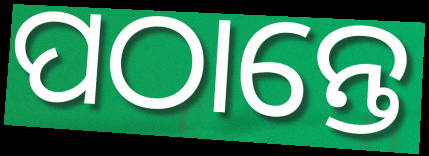
ପଠାନ୍ତେ